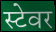
स्टेवर